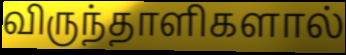
விருந்தாளிகளால்